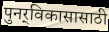
पुनर्विकासासाठी